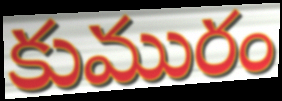
కుమురం